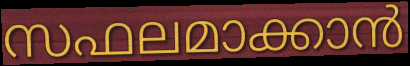
സഫലമാക്കാൻ